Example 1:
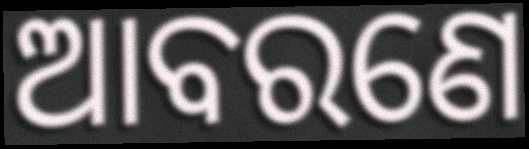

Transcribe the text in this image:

ଆବରଣେ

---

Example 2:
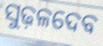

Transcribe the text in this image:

ସୁଢ଼ଳଦେବ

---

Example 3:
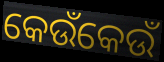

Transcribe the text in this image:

କେଉଁକେଉଁ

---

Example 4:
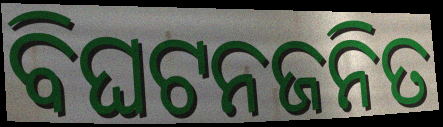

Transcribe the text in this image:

ବିଘଟନଜନିତ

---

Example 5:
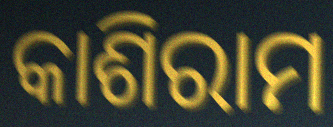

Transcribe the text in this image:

କାଶିରାମ